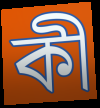
কী